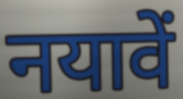
नयावें